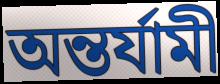
অন্তর্যামী